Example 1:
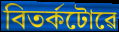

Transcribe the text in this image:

বিতৰ্কটোৱে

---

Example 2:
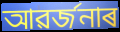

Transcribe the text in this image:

আৱৰ্জনাৰ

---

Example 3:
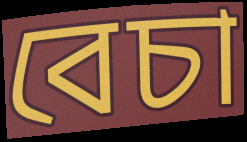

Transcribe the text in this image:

বেচা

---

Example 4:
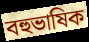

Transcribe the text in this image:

বহুভাষিক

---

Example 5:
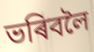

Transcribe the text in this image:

ভৰিবলৈ